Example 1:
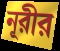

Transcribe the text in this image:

নূরীর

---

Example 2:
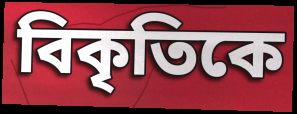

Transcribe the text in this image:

বিকৃতিকে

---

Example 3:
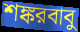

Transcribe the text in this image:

শঙ্করবাবু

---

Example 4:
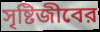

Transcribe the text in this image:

সৃষ্টিজীবের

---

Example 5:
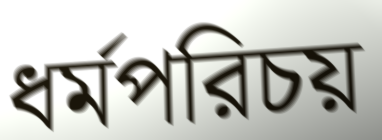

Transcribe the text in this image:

ধর্মপরিচয়